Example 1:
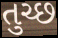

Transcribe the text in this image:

તુચ્છ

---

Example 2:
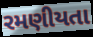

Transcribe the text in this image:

રમણીયતા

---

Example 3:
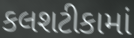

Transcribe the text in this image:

કલશટીકામાં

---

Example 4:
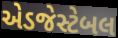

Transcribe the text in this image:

એડજેસ્ટેબલ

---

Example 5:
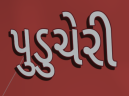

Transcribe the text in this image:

પુડુચેરી